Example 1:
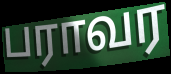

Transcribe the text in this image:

பராவர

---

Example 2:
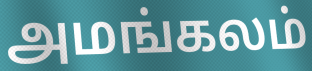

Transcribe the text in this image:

அமங்கலம்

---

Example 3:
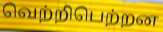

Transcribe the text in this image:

வெற்றிபெற்றன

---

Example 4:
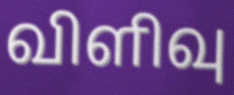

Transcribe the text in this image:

விளிவு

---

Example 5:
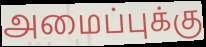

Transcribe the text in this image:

அமைப்புக்கு